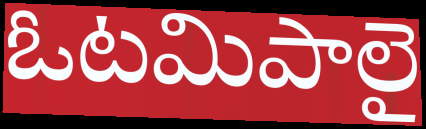
ఓటమిపాలై